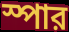
স্পার